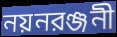
নয়নরঞ্জনী